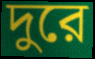
দুরে